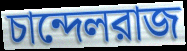
চান্দেলরাজ